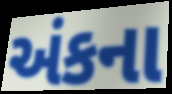
અંકના